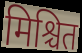
मिश्चित